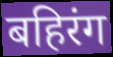
बहिरंग